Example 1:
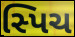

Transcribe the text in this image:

સ્પિચ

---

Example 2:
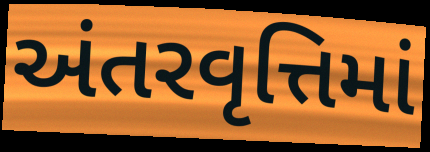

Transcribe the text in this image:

અંતરવૃત્તિમાં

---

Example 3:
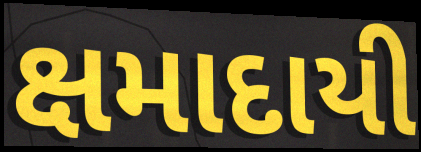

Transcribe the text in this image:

ક્ષમાદાયી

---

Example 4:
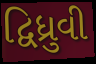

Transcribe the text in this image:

દ્વિધ્રુવી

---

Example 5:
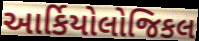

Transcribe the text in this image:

આર્કિયોલોજિકલ